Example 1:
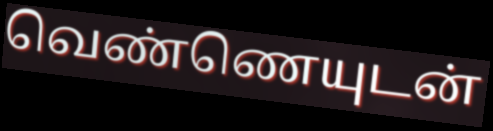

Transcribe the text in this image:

வெண்ணெயுடன்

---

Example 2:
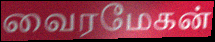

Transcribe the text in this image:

வைரமேகன்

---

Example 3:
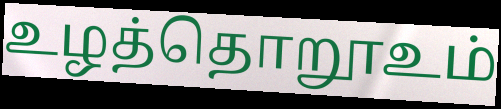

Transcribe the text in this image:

உழத்தொறூஉம்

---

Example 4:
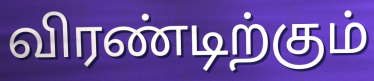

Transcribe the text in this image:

விரண்டிற்கும்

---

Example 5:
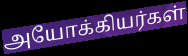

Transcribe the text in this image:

அயோக்கியர்கள்